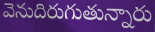
వెనుదిరుగుతున్నారు